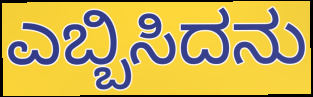
ಎಬ್ಬಿಸಿದನು